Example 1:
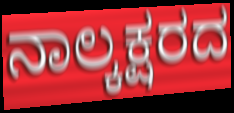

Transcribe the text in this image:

ನಾಲ್ಕಕ್ಷರದ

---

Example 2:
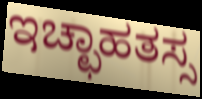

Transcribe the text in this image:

ಇಚ್ಛಾಹತಸ್ಸ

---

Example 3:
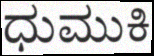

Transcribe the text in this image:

ಧುಮುಕಿ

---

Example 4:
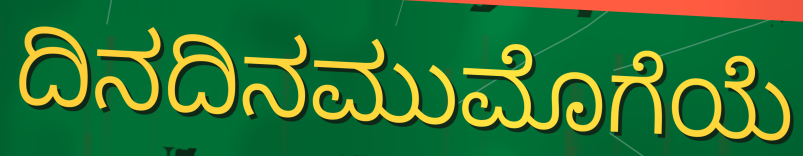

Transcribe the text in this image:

ದಿನದಿನಮುಮೊಗೆಯೆ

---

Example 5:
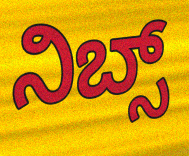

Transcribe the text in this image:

ನಿಬ್ಸ್